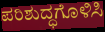
ಪರಿಶುದ್ಧಗೊಳಿಸಿ